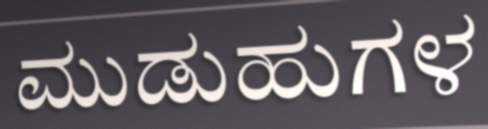
ಮುಡುಹುಗಳ